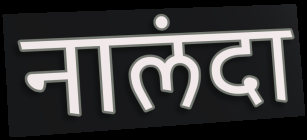
नालंदा